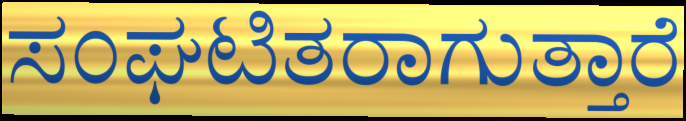
ಸಂಘಟಿತರಾಗುತ್ತಾರೆ